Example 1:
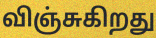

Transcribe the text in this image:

விஞ்சுகிறது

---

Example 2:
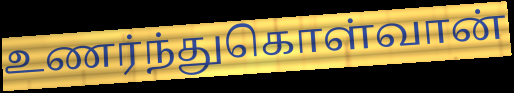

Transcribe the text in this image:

உணர்ந்துகொள்வான்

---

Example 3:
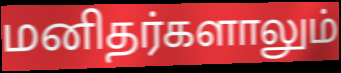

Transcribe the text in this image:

மனிதர்களாலும்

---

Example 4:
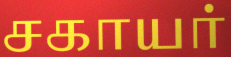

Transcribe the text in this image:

சகாயர்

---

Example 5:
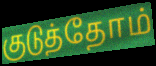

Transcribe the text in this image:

குடுத்தோம்